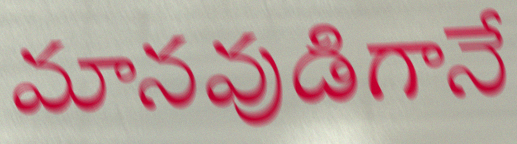
మానవుడిగానే